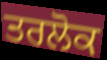
ਤਰਲੋਕ